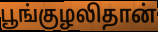
பூங்குழலிதான்